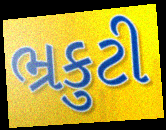
ભ્રકુટી